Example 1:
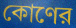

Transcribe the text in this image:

কোণের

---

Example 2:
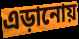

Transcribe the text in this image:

এড়ানোয়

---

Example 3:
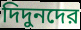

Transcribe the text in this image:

দিদুনদের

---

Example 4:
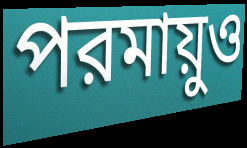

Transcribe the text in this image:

পরমায়ুও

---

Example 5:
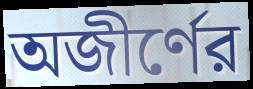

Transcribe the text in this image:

অজীর্ণের